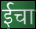
ईचा